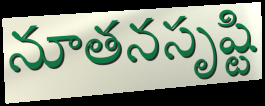
నూతనసృష్టి